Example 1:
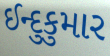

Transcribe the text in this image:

ઈન્દુકુમાર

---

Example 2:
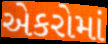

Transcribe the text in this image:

એકરોમાં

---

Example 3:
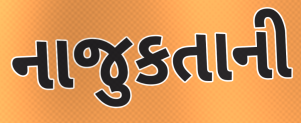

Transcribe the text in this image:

નાજુકતાની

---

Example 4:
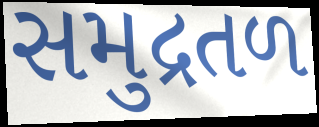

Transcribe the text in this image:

સમુદ્રતળ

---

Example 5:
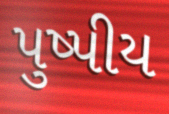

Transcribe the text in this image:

પુષ્પીય